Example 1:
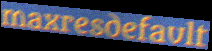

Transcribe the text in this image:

maxresdefault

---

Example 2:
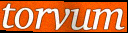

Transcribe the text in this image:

torvum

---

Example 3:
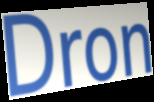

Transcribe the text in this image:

Dron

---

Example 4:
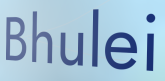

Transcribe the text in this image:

Bhulei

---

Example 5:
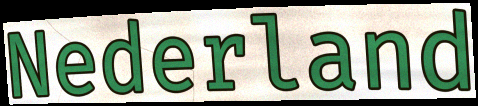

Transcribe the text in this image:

Nederland